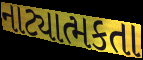
નાટ્યાત્મકતા